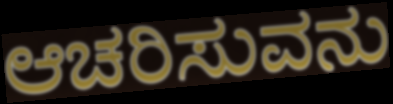
ಆಚರಿಸುವನು